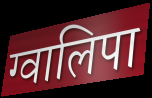
ग्वालिपा